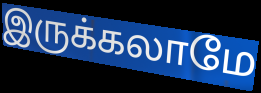
இருக்கலாமே